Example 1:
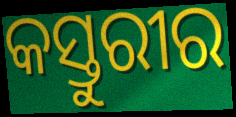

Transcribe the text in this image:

କସ୍ତୁରୀର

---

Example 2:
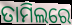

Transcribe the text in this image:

ତାମିଲରେ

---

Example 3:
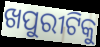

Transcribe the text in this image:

ଖପୁରୀଟିକୁ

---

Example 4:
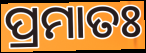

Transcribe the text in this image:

ପ୍ରମାତଃ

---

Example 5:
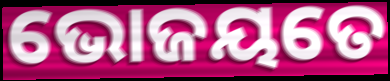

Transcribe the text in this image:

ଭୋଜୟତେ